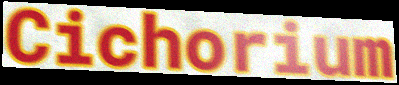
Cichorium